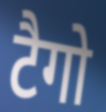
टैगो